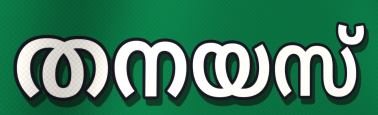
തനയസ്